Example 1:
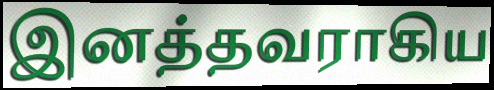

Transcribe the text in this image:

இனத்தவராகிய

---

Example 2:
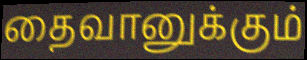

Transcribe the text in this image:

தைவானுக்கும்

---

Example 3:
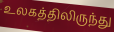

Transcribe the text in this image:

உலகத்திலிருந்து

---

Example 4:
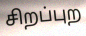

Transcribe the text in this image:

சிறப்புற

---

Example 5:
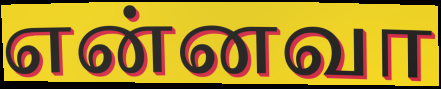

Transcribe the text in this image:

என்னவா